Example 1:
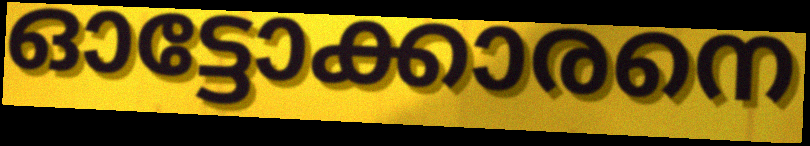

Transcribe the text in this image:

ഓട്ടോക്കാരനെ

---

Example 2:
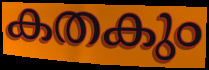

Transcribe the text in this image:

കതകും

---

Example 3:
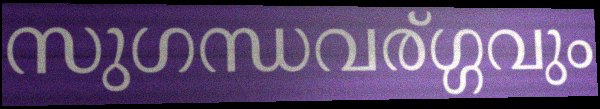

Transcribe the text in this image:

സുഗന്ധവര്ഗ്ഗവും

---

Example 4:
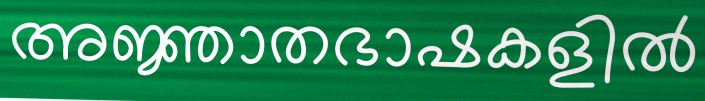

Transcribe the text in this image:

അജ്ഞാതഭാഷകളിൽ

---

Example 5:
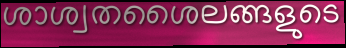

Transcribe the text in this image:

ശാശ്വതശൈലങ്ങളുടെ